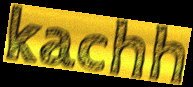
kachh